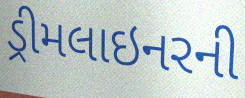
ડ્રીમલાઇનરની